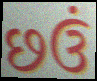
છઉં